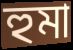
হুমা